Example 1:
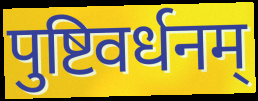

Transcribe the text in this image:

पुष्टिवर्धनम्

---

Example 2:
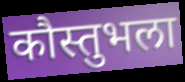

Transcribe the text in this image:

कौस्तुभला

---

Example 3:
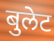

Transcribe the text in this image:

बुलेट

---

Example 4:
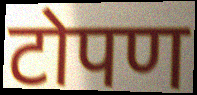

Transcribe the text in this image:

टोपण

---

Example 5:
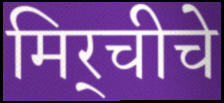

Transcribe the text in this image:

मिर्चीचे